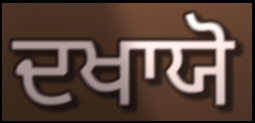
ਦਖਾਯੋ